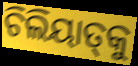
ଚିଲିୟାତ୍‍କୁ